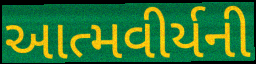
આત્મવીર્યની